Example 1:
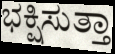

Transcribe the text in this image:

ಭಕ್ಷಿಸುತ್ತಾ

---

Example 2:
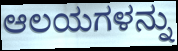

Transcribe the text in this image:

ಆಲಯಗಳನ್ನು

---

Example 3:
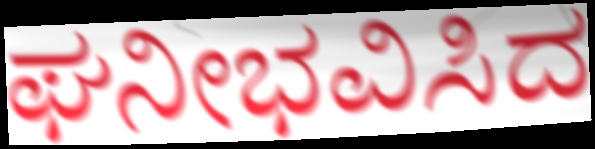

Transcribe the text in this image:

ಘನೀಭವಿಸಿದ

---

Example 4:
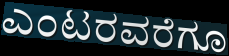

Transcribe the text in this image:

ಎಂಟರವರೆಗೂ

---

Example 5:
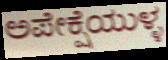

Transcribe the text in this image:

ಅಪೇಕ್ಷೆಯುಳ್ಳ